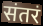
संतरं